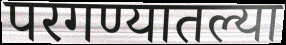
परगण्यातल्या